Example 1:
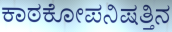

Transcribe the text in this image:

ಕಾಠಕೋಪನಿಷತ್ತಿನ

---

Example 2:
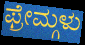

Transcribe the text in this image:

ಫ್ರೇಮ್ಗಳು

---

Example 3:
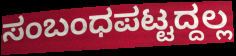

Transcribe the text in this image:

ಸಂಬಂಧಪಟ್ಟದ್ದಲ್ಲ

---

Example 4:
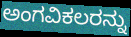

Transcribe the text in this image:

ಅಂಗವಿಕಲರನ್ನು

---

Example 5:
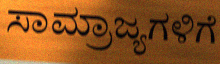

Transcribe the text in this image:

ಸಾಮ್ರಾಜ್ಯಗಳಿಗೆ